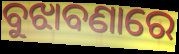
ବୁଝାବଣାରେ